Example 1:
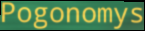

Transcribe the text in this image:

Pogonomys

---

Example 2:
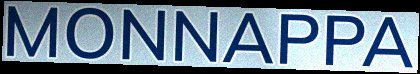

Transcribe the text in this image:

MONNAPPA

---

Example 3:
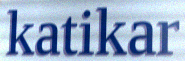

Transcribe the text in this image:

katikar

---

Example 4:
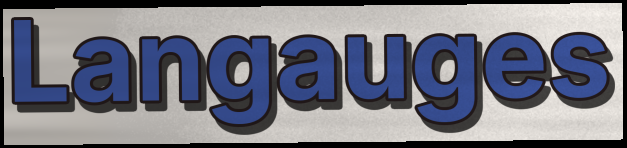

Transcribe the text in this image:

Langauges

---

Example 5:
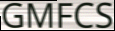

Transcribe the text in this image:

GMFCS